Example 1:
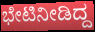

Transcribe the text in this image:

ಭೇಟಿನೀಡಿದ್ದ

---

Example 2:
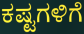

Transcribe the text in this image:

ಕಷ್ಟಗಳಿಗೆ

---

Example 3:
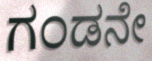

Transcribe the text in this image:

ಗಂಡನೇ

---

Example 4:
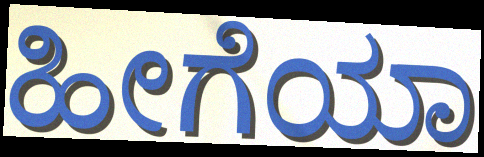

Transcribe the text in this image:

ಹೀಗೆಯಾ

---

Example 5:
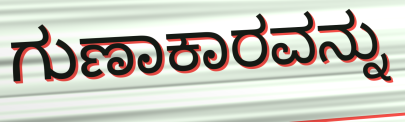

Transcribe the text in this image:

ಗುಣಾಕಾರವನ್ನು